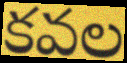
కవల